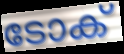
ടോക്